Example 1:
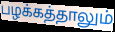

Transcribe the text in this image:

பழக்கத்தாலும்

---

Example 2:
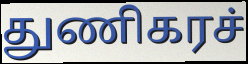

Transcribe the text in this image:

துணிகரச்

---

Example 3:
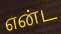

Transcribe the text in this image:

என்ட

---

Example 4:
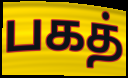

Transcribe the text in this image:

பகத்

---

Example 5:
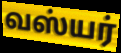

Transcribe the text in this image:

வஸ்யர்